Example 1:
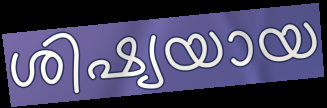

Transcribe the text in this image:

ശിഷ്യയായ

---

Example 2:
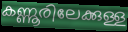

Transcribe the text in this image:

കണ്ണൂരിലേക്കുള്ള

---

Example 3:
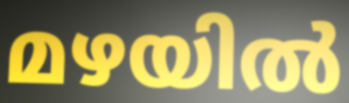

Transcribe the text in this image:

മഴയിൽ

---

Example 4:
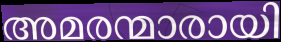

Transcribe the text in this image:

അമരന്മാരായി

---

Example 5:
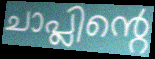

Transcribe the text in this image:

ചാപ്ലിന്റെ